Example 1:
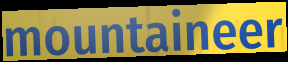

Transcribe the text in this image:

mountaineer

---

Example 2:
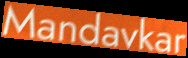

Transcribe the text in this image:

Mandavkar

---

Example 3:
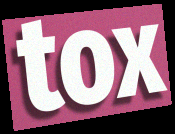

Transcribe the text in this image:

tox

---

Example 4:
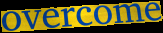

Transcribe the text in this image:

overcome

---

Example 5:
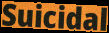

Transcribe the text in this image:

Suicidal